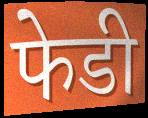
फेडी